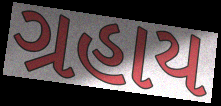
ગ્રહાય